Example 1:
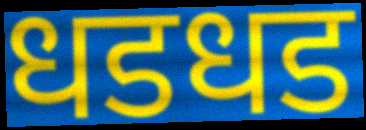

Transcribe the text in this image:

धडधड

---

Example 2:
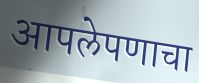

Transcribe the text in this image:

आपलेपणाचा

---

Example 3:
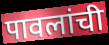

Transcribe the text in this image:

पावलांची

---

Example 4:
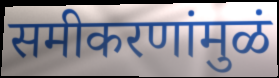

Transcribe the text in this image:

समीकरणांमुळं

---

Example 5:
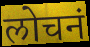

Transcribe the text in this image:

लोचनं